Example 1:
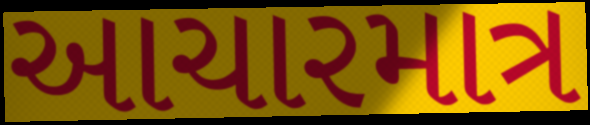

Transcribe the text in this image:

આચારમાત્ર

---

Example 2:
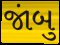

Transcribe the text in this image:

જાંબુ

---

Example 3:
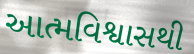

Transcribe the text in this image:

આત્મવિશ્વાસથી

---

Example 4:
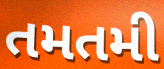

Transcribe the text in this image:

તમતમી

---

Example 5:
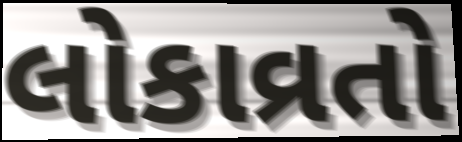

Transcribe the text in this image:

લોકાવ્રતો